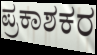
ಪ್ರಕಾಶಕರ